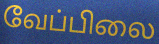
வேப்பிலை